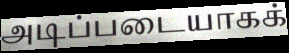
அடிப்படையாகக்